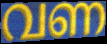
വണ